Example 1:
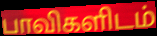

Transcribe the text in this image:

பாவிகளிடம்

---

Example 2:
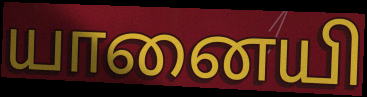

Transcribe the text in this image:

யானையி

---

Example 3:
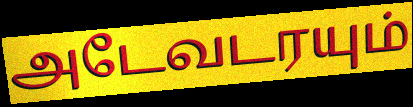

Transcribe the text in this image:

அடேவடரயும்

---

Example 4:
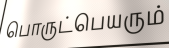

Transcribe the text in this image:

பொருட்பெயரும்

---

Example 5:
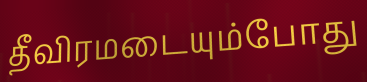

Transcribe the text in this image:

தீவிரமடையும்போது